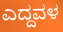
ಎದ್ದವಳ